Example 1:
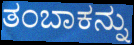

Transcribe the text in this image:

ತಂಬಾಕನ್ನು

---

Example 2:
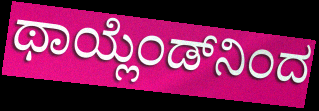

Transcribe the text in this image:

ಥಾಯ್ಲೆಂಡ್‌ನಿಂದ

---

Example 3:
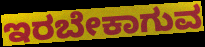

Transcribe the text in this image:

ಇರಬೇಕಾಗುವ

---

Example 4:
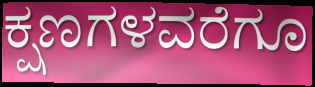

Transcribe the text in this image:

ಕ್ಷಣಗಳವರೆಗೂ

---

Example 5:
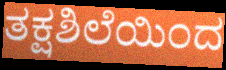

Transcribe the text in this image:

ತಕ್ಷಶಿಲೆಯಿಂದ